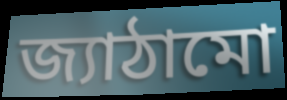
জ্যাঠামো